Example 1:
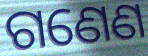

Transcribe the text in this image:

ଗଣେଣ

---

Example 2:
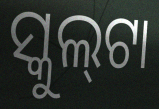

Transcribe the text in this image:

ସ୍କୁଲ୍‍ଟା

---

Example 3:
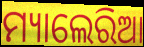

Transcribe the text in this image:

ମ୍ଯାଲେରିଆ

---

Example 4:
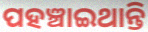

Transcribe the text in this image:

ପହଞ୍ଚାଇଥାନ୍ତି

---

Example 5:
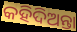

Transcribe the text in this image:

କହିଦିଅନ୍ତା